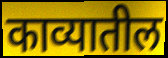
काव्यातील